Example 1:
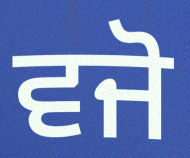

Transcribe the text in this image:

ਵਜੋ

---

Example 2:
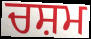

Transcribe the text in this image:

ਚਸ਼ਮ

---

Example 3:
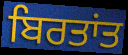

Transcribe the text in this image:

ਬਿਰਤਾਂਤ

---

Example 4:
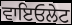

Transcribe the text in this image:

ਵਾਇਓਲੇਟ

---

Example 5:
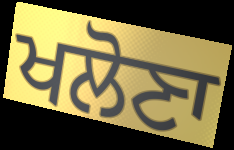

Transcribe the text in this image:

ਖਲੋਣਾ